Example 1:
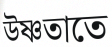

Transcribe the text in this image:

উষ্ণতাতে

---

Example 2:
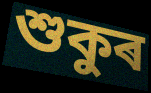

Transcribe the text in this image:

শুকুৰ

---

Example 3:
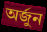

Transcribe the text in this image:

অৰ্জুন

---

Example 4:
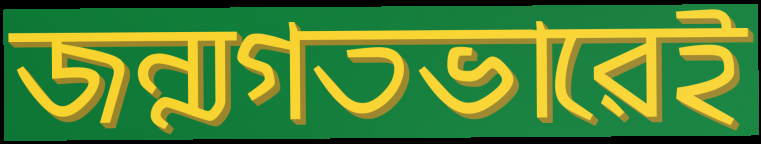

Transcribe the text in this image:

জন্মগতভাৱেই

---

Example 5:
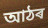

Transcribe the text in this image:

আঠৰ